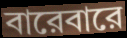
বারেবারে